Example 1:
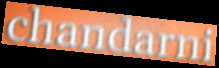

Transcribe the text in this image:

chandarni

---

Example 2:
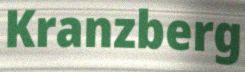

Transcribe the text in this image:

Kranzberg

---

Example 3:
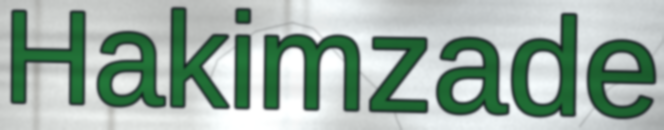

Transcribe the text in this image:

Hakimzade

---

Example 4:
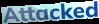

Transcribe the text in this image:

Attacked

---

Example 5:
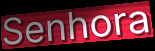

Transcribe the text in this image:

Senhora